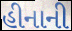
હીનાની